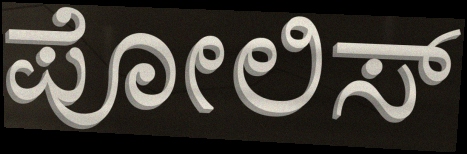
ಪೋಲಿಸ್